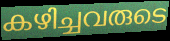
കഴിച്ചവരുടെ